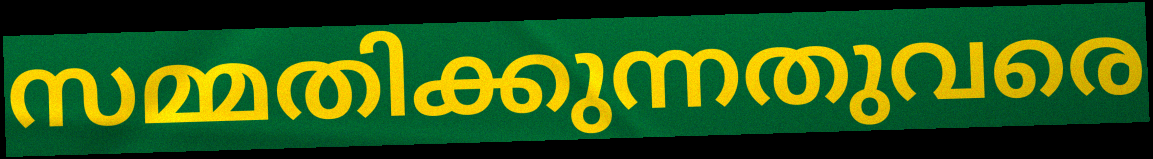
സമ്മതിക്കുന്നതുവരെ